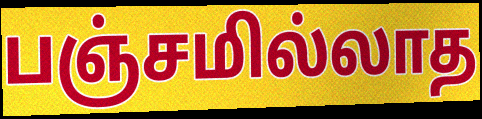
பஞ்சமில்லாத